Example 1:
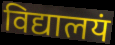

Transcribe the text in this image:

विद्यालयं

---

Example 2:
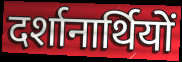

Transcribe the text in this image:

दर्शानार्थियों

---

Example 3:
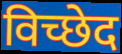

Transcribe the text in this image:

विच्छेद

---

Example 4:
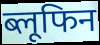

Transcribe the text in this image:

ब्लूफिन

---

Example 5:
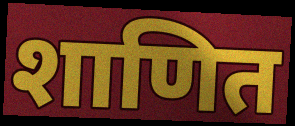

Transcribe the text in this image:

शाणित